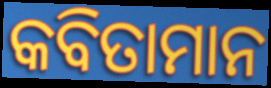
କବିତାମାନ